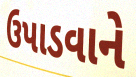
ઉપાડવાને